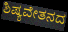
ಶಿಷ್ಯವೇತನದ